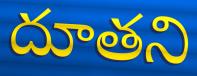
దూతని